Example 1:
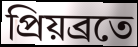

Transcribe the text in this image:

প্ৰিয়ব্ৰতে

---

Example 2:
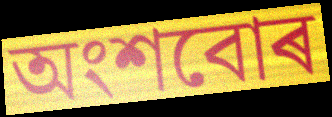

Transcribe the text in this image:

অংশবোৰ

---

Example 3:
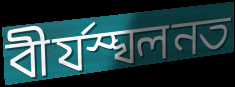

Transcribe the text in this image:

বীৰ্যস্খলনত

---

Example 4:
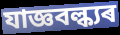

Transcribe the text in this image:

যাজ্ঞবল্ক্যৰ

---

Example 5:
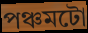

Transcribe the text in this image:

পঞ্চমটো